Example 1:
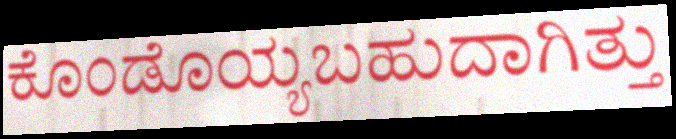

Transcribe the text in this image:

ಕೊಂಡೊಯ್ಯಬಹುದಾಗಿತ್ತು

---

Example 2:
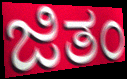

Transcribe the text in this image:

ಜಿತಂ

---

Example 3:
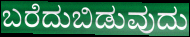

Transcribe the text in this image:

ಬರೆದುಬಿಡುವುದು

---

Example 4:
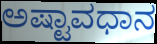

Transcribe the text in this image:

ಅಷ್ಟಾವಧಾನ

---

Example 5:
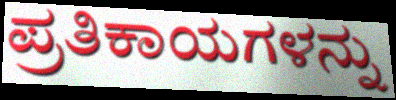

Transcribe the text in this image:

ಪ್ರತಿಕಾಯಗಳನ್ನು